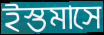
ইস্তমাসে